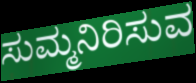
ಸುಮ್ಮನಿರಿಸುವ